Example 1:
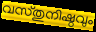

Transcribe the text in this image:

വസ്തുനിഷ്ഠവും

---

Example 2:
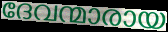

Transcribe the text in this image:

ദേവന്മാരായ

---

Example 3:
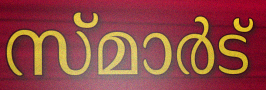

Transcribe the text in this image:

സ്മാർട്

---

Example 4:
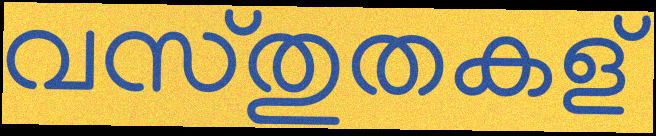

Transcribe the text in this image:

വസ്തുതകള്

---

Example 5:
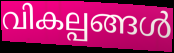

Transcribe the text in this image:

വികല്പങ്ങൾ